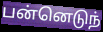
பன்னெடுந்